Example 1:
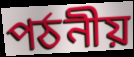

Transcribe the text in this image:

পঠনীয়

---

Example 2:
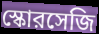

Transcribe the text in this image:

স্কোরসেজি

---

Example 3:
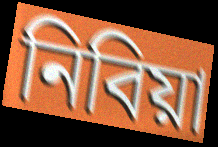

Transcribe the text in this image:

নিবিয়া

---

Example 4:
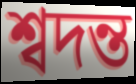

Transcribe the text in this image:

শ্বদন্ত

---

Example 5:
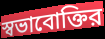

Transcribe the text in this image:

স্বভাবোক্তির